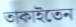
তাকাইতেন